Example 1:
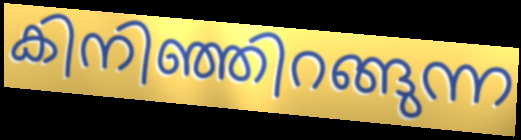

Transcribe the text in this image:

കിനിഞ്ഞിറങ്ങുന്ന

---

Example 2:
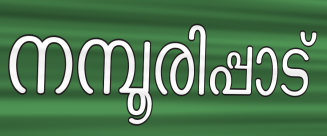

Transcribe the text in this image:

നമ്പൂരിപ്പാട്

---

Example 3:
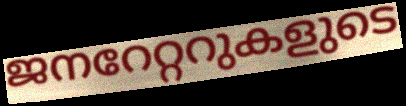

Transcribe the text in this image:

ജനറേറ്ററുകളുടെ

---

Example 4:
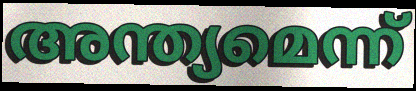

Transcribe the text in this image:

അന്ത്യമെന്ന്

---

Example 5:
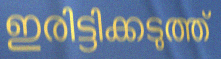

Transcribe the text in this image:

ഇരിട്ടിക്കടുത്ത്